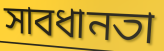
সাবধানতা